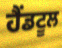
ਹੈਂਡਟੂਲ